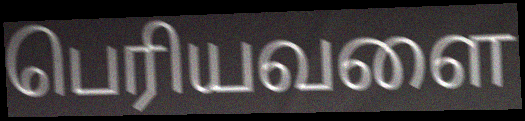
பெரியவளை